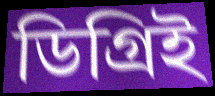
ডিগ্রিই